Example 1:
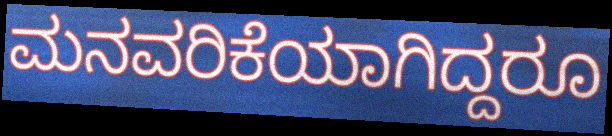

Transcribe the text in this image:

ಮನವರಿಕೆಯಾಗಿದ್ದರೂ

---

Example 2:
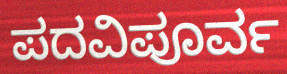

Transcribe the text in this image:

ಪದವಿಪೂರ್ವ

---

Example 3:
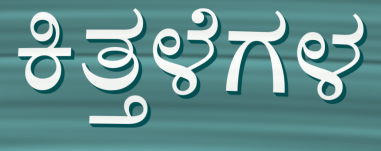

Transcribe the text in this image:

ಕಿತ್ತಳೆಗಳ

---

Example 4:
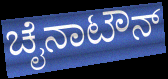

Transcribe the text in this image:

ಚೈನಾಟೌನ್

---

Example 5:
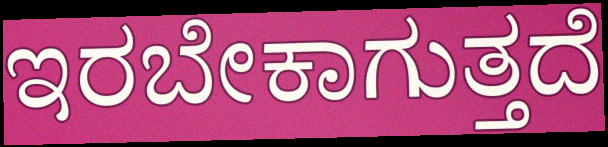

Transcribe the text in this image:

ಇರಬೇಕಾಗುತ್ತದೆ